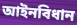
আইনবিধান